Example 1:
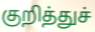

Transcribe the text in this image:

குறித்துச்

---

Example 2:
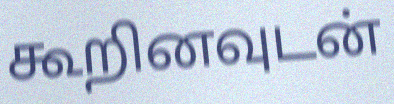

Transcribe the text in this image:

கூறினவுடன்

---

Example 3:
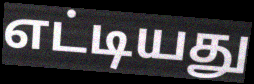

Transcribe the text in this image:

எட்டியது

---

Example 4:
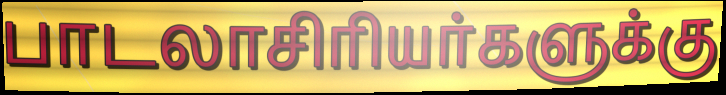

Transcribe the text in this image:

பாடலாசிரியர்களுக்கு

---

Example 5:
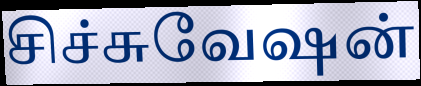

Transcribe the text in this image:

சிச்சுவேஷன்